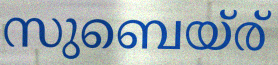
സുബെയ്ര്